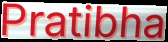
Pratibha